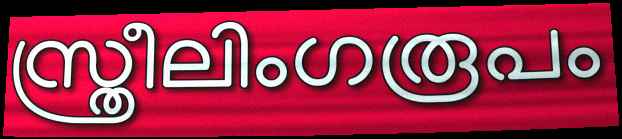
സ്ത്രീലിംഗരൂപം